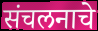
संचलनाचे